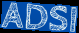
ADSI